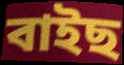
বাইছ